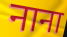
नाना